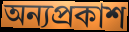
অন্যপ্রকাশ